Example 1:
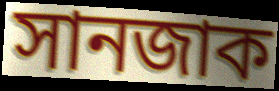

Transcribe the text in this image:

সানজাক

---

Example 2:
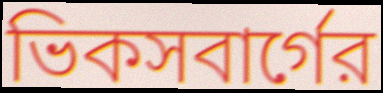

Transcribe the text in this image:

ভিকসবার্গের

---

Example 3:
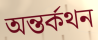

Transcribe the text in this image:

অন্তর্কথন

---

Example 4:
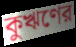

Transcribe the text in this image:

কুঋণের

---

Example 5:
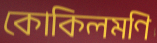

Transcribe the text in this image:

কোকিলমণি